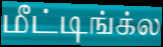
மீட்டிங்க்ல